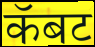
कॅबट